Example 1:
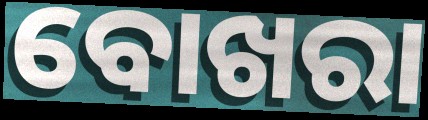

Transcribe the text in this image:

ବୋଖରା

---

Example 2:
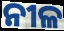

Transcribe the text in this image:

ନୀଳ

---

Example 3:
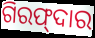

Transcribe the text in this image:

ଗିରଫ୍‍ଦାର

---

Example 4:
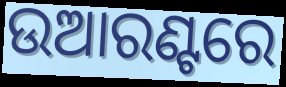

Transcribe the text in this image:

ଉଆରଣ୍ଟରେ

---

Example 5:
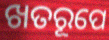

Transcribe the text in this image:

ଖତରୂପେ